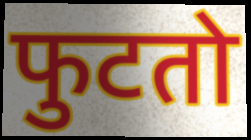
फुटतो